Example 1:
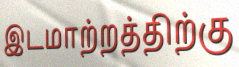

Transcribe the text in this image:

இடமாற்றத்திற்கு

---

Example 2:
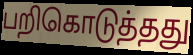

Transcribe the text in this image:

பறிகொடுத்தது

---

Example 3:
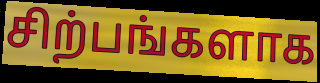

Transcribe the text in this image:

சிற்பங்களாக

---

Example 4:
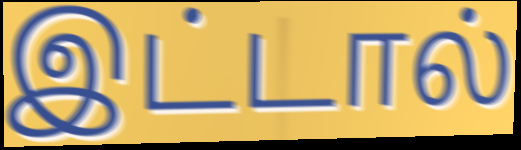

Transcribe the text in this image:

இட்டால்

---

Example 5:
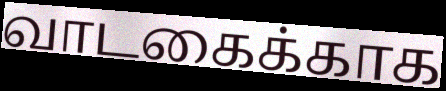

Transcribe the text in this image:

வாடகைக்காக